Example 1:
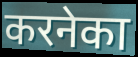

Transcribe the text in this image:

करनेका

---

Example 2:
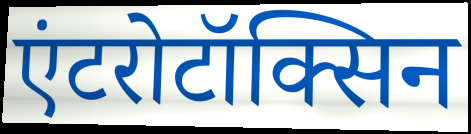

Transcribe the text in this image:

एंटरोटॉक्सिन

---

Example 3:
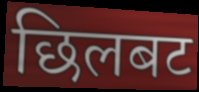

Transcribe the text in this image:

छिलबट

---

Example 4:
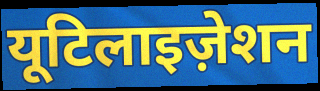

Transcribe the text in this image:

यूटिलाइज़ेशन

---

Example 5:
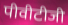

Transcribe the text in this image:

पीवीटीजी